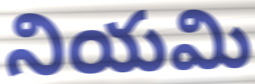
నియమి